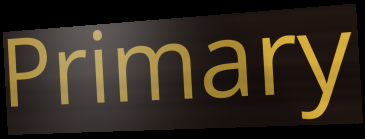
Primary